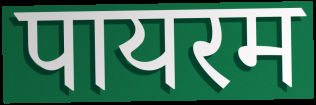
पायरम